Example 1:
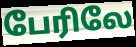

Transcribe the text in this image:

பேரிலே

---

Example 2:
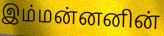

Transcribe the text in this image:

இம்மன்னனின்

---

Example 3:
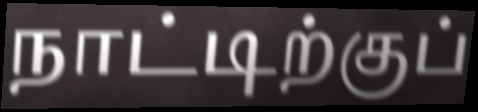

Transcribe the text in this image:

நாட்டிற்குப்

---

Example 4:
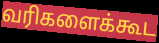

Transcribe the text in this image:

வரிகளைக்கூட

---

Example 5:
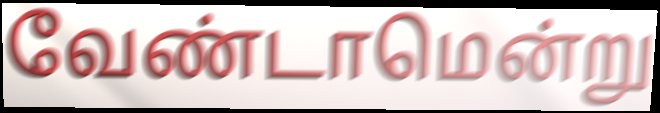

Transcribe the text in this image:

வேண்டாமென்று